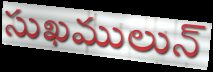
సుఖములున్